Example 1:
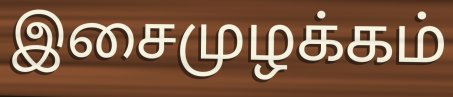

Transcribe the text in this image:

இசைமுழக்கம்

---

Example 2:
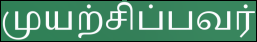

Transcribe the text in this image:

முயற்சிப்பவர்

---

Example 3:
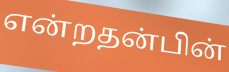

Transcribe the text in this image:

என்றதன்பின்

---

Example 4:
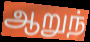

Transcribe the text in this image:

ஆறுந்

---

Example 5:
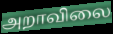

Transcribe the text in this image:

அறாவிலை